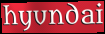
hyundai